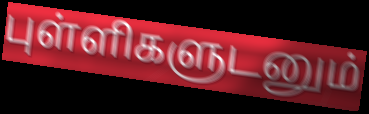
புள்ளிகளுடனும்